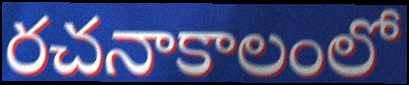
రచనాకాలంలో